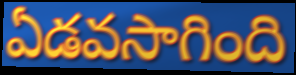
ఏడవసాగింది